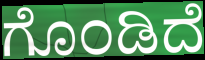
ಗೊಂಡಿದೆ